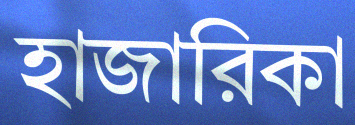
হাজারিকা